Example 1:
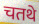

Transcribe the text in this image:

चतथे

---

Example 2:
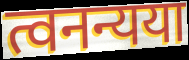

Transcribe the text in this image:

त्वनन्यया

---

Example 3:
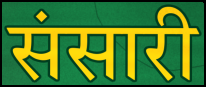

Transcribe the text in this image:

संसारी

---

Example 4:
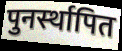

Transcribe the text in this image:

पुनर्स्थापित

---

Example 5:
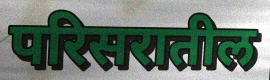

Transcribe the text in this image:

परिसरातील